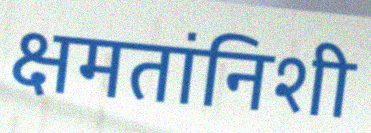
क्षमतांनिशी